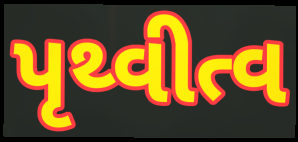
પૃથ્વીત્વ